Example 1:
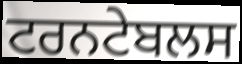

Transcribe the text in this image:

ਟਰਨਟੇਬਲਸ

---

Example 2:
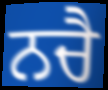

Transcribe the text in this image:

ਨਚੈ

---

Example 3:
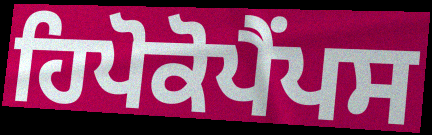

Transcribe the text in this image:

ਹਿਪੋਕੋਪੈਂਪਸ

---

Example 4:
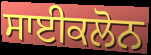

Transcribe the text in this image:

ਸਾਈਕਲੋਨ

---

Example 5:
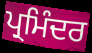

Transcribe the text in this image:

ਪ੍ਰਮਿੰਦਰ